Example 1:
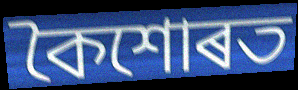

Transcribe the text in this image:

কৈশোৰত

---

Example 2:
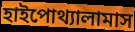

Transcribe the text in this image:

হাইপোথ্যালামাস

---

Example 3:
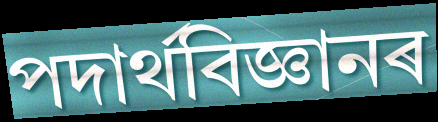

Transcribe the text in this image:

পদাৰ্থবিজ্ঞানৰ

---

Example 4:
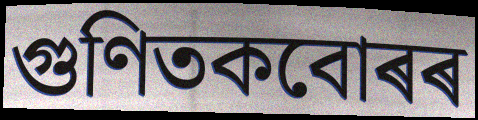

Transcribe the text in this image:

গুণিতকবোৰৰ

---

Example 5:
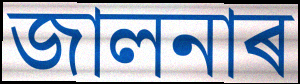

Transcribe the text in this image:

জালনাৰ